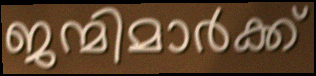
ജന്മിമാർക്ക്